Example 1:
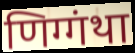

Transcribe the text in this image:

णिग्गंथा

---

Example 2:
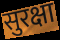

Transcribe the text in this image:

सुरक्षा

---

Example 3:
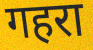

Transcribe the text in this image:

गहरा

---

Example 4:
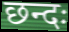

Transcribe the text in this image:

छन्दः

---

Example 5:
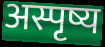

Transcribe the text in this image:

अस्पृष्य